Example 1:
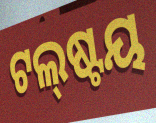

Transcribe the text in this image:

ଟଲ୍‌ଷ୍ଟୟ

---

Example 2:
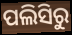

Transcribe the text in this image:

ପଲିସିରୁ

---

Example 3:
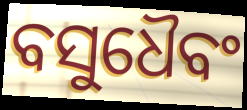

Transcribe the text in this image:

ବସୁଧୈବଂ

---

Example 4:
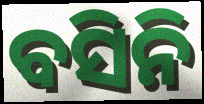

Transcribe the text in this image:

ବସିନି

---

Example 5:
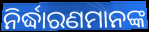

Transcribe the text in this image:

ନିର୍ଦ୍ଧାରଣମାନଙ୍କ